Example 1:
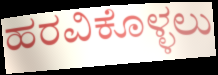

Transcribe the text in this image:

ಹರವಿಕೊಳ್ಳಲು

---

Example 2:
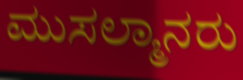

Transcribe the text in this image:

ಮುಸಲ್ಮಾನರು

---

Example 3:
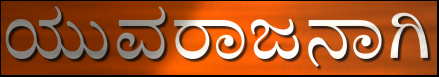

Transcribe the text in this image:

ಯುವರಾಜನಾಗಿ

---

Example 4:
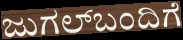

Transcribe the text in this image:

ಜುಗಲ್‌ಬಂದಿಗೆ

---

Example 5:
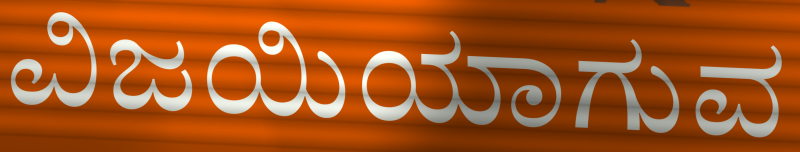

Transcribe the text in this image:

ವಿಜಯಿಯಾಗುವ